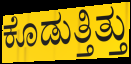
ಕೊಡುತ್ತಿತ್ತು